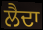
ਲੈਦਾ